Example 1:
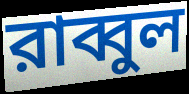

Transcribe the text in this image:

রাব্বুল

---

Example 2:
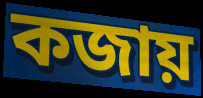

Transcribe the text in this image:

কজায়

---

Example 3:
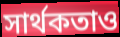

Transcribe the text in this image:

সার্থকতাও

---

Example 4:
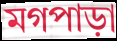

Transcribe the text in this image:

মগপাড়া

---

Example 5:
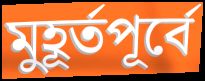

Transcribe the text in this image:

মুহূর্তপূর্বে